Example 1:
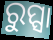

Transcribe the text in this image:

ରୁପ୍ସା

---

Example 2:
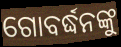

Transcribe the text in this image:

ଗୋବର୍ଦ୍ଧନଙ୍କୁ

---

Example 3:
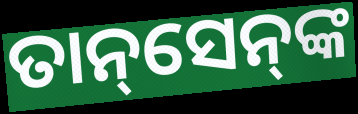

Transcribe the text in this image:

ତାନ୍‌ସେନ୍‌ଙ୍କ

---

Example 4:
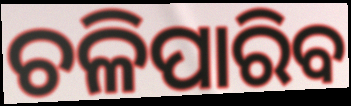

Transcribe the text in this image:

ଚଳିପାରିବ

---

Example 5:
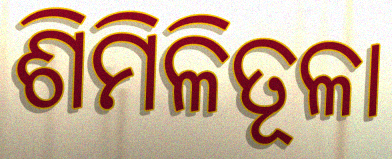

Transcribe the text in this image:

ଶିମିଳିତୂଳା